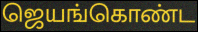
ஜெயங்கொண்ட